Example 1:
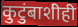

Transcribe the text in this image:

कुटुंबाशीही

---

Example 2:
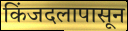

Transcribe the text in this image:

किंजदलापासून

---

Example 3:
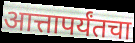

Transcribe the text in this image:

आत्तापर्यंतचा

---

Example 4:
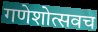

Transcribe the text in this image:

गणेशोत्सवच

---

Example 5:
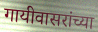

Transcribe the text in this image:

गायीवासरांच्या